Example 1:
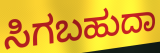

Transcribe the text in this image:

ಸಿಗಬಹುದಾ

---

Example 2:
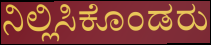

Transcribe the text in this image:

ನಿಲ್ಲಿಸಿಕೊಂಡರು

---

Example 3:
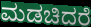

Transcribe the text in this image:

ಮಡಚಿದರೆ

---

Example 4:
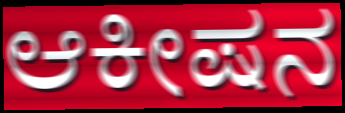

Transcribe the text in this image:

ಆಕೀಷನ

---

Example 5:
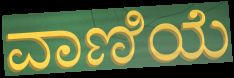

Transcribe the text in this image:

ವಾಣಿಯೆ